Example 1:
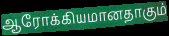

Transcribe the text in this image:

ஆரோக்கியமானதாகும்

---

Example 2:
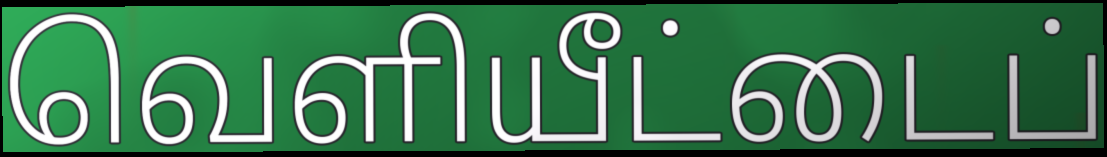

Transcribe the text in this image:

வெளியீட்டைப்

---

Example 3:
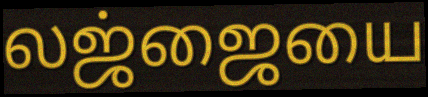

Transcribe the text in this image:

லஜ்ஜையை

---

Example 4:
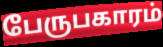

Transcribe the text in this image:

பேருபகாரம்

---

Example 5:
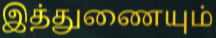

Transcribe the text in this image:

இத்துணையும்